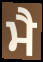
ਮੈ